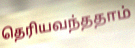
தெரியவந்ததாம்